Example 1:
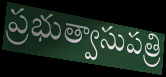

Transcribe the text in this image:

ప్రభుత్వాసుపత్రి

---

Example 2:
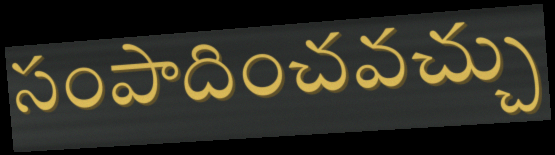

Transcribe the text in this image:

సంపాదించవచ్చు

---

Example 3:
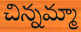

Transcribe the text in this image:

చిన్నమ్మా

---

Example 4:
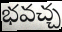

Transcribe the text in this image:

భవచ్చ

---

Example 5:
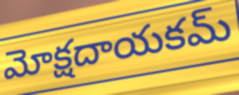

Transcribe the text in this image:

మోక్షదాయకమ్